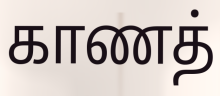
காணத்